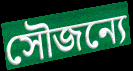
সৌজন্যে